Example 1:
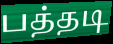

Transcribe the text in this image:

பத்தடி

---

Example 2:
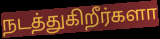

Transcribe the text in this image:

நடத்துகிறீர்களா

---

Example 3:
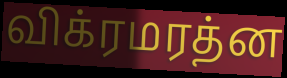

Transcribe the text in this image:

விக்ரமரத்ன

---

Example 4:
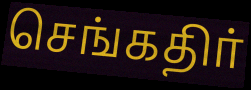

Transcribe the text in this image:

செங்கதிர்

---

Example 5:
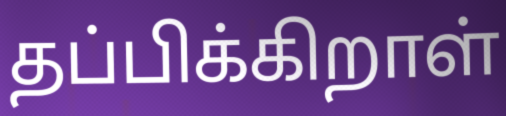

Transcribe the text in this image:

தப்பிக்கிறாள்